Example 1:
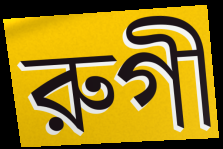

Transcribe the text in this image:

রুগী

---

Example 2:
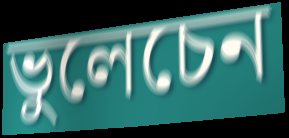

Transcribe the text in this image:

ভুলেচেন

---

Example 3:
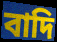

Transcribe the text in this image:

বাদি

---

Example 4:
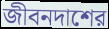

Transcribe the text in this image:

জীবনদাশের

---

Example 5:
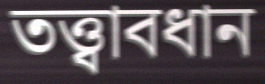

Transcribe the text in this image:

তত্ত্বাবধান